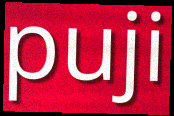
puji